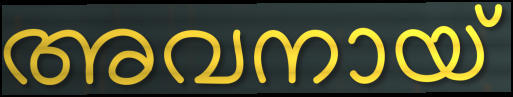
അവനായ്